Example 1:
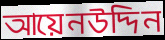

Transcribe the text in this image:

আয়েনউদ্দিন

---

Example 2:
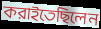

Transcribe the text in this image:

করাইতেছিলেন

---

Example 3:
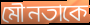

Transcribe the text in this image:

মৌনতাকে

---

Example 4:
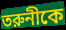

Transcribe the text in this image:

তরুনীকে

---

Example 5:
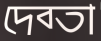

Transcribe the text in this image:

দেব্তা